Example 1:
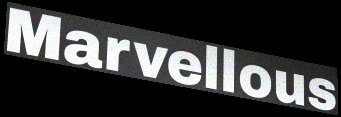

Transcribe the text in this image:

Marvellous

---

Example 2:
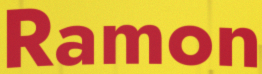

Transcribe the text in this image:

Ramon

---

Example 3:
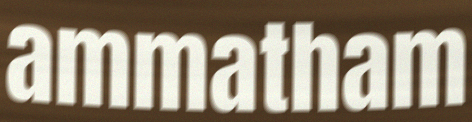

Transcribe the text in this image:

ammatham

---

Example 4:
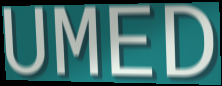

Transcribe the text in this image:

UMED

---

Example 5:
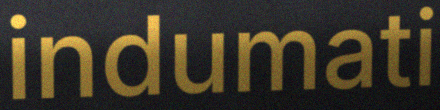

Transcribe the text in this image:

indumati